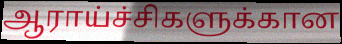
ஆராய்ச்சிகளுக்கான